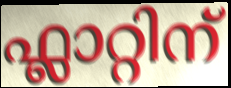
ഫ്ലാറ്റിന്